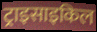
ट्राइसाइकिल